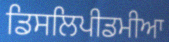
ਡਿਸਲਿਪੀਡਮੀਆ